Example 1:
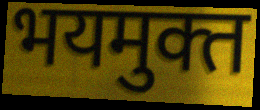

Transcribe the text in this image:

भयमुक्‍त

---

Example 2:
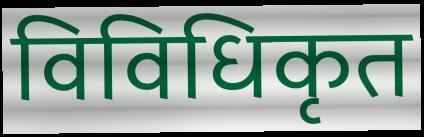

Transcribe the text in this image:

विविधिकृत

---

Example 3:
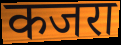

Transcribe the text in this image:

कजरा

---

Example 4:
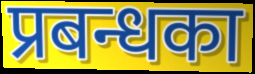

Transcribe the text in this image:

प्रबन्धका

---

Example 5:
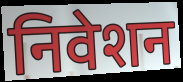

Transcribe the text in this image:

निवेशन